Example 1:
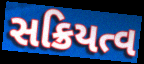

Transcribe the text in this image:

સક્રિયત્વ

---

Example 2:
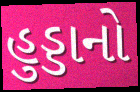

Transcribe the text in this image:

હુડ્ડાનો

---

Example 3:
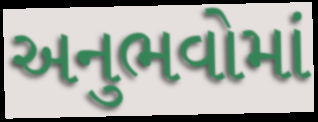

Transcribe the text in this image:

અનુભવોમાં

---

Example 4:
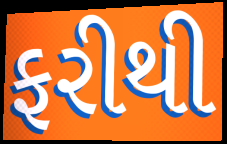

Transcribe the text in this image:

ફરીથી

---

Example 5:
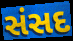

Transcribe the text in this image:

સંસદ